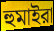
হুমাইরা